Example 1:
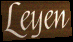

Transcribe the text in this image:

Leyen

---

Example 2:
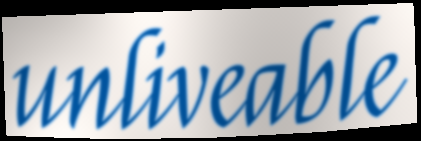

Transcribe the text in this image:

unliveable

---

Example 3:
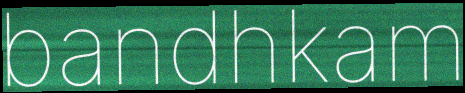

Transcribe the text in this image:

bandhkam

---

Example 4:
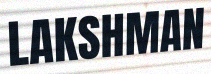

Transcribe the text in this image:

LAKSHMAN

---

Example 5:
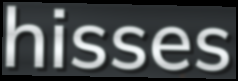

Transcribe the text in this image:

hisses